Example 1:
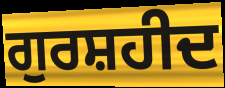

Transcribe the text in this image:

ਗੁਰਸ਼ਹੀਦ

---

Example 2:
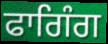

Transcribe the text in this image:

ਫਾਗਿੰਗ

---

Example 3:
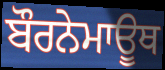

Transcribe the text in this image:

ਬੌਰਨੇਮਾਊਥ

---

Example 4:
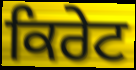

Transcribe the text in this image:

ਕਿਰੇਟ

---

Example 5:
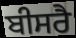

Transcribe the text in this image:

ਬੀਸਰੈ